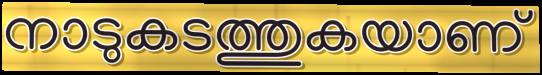
നാടുകടത്തുകയാണ്